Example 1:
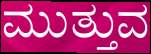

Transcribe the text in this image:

ಮುತ್ತುವ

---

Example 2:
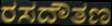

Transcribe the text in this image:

ರಸದೌತಣ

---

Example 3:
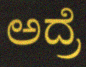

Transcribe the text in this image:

ಅದ್ರೆ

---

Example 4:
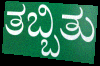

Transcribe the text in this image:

ತಬ್ಬಿತು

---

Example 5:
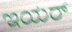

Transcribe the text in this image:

ಇಯರ್